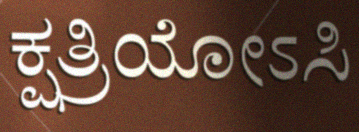
ಕ್ಷತ್ರಿಯೋಽಸಿ